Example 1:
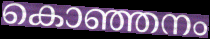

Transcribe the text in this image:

കൊഞ്ഞനം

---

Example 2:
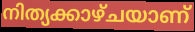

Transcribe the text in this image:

നിത്യക്കാഴ്ചയാണ്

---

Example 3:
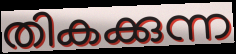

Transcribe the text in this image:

തികക്കുന്ന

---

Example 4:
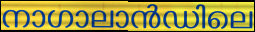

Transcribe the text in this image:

നാഗാലാൻഡിലെ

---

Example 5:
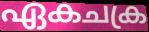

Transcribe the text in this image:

ഏകചക്ര